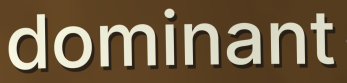
dominant